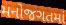
મનોજગતમાં